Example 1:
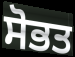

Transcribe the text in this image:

ਸੋਭਤ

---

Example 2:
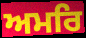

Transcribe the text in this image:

ਅਮਰਿ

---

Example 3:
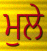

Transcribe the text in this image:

ਮੁਲੇ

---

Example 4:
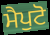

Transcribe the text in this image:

ਮੈਪੁਟੋ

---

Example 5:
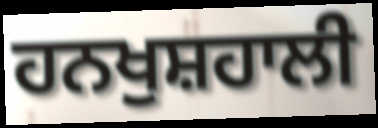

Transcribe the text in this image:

ਹਨਖੁਸ਼ਹਾਲੀ